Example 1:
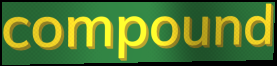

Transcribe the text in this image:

compound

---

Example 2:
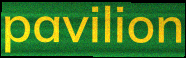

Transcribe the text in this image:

pavilion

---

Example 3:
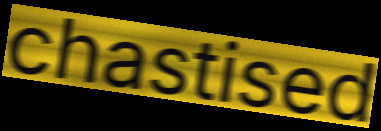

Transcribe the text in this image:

chastised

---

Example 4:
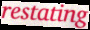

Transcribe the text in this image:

restating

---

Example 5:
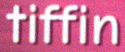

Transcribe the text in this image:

tiffin